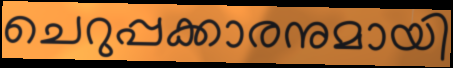
ചെറുപ്പക്കാരനുമായി